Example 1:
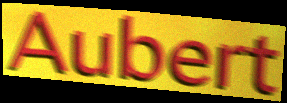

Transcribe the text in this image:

Aubert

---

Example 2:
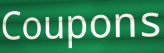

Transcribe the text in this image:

Coupons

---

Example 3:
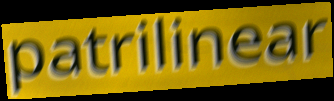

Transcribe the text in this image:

patrilinear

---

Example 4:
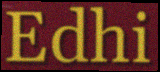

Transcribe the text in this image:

Edhi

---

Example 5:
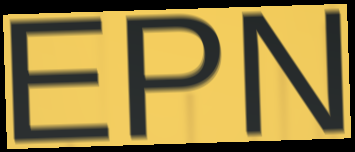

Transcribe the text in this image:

EPN